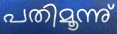
പതിമൂന്നു്